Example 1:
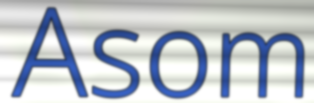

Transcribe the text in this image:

Asom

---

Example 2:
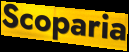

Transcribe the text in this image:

Scoparia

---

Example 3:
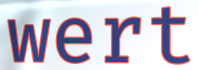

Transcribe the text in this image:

wert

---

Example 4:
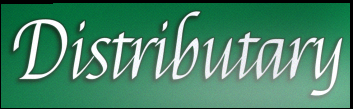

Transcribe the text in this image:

Distributary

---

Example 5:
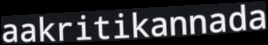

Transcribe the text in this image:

aakritikannada